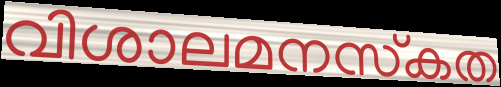
വിശാലമനസ്‌കത